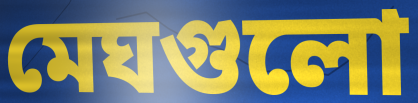
মেঘগুলো